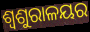
ଶ୍ୱଶୁରାଳୟର